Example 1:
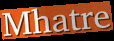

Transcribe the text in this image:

Mhatre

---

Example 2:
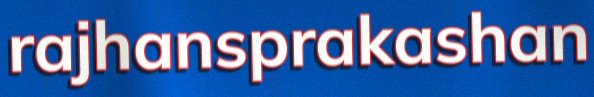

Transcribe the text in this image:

rajhansprakashan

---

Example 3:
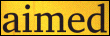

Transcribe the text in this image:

aimed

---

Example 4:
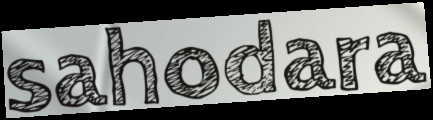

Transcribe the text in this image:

sahodara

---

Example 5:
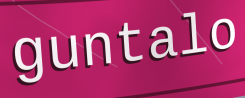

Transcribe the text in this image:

guntalo